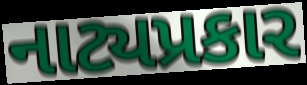
નાટ્યપ્રકાર